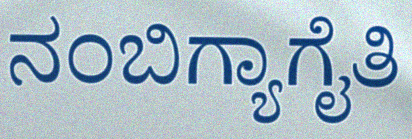
ನಂಬಿಗ್ಯಾಗೈತಿ